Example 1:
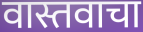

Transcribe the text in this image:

वास्तवाचा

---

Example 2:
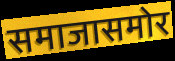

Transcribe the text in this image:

समाजासमोर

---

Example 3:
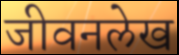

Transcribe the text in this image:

जीवनलेख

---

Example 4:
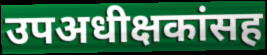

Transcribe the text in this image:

उपअधीक्षकांसह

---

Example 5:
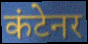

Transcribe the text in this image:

कंटेनर